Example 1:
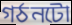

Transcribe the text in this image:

গঠনটো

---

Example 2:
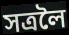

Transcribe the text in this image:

সত্ৰলৈ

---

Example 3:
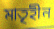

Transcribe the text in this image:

মাতৃহীন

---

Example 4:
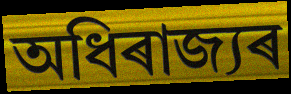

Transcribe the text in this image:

অধিৰাজ্যৰ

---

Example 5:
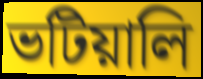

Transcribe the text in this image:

ভটিয়ালি